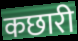
कछारी